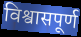
विश्वासपूर्ण